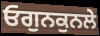
ਓਗੁਨਕੁਨਲੇ